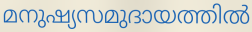
മനുഷ്യസമുദായത്തിൽ